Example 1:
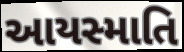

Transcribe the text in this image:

આયસ્માતિ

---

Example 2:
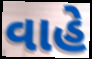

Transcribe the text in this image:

વાહે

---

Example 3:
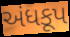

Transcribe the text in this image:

અંધકૂપ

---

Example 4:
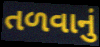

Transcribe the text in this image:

તળવાનું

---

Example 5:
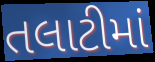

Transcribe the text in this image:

તલાટીમાં